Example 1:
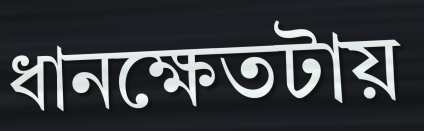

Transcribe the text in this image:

ধানক্ষেতটায়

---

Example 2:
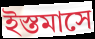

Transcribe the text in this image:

ইস্তমাসে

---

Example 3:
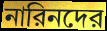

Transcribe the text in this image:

নারিনদের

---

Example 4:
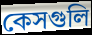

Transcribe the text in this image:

কেসগুলি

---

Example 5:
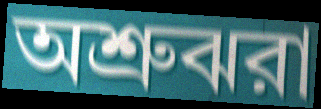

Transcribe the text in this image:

অশ্রুঝরা